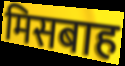
मिसबाह